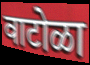
वाटोळा